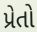
પ્રેતો